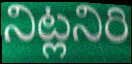
నిట్లనిరి